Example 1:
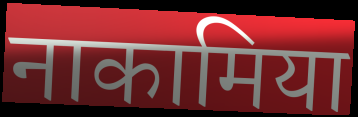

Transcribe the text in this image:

नाकामिया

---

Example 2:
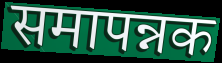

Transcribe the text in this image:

समापन्नक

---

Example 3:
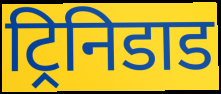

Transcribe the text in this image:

ट्रिनिडाड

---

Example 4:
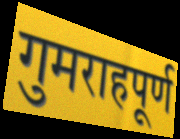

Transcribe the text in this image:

गुमराहपूर्ण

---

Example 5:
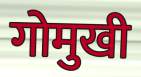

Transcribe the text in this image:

गोमुखी